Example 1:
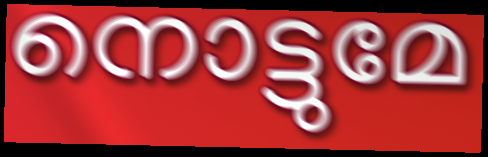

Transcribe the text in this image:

നൊട്ടുമേ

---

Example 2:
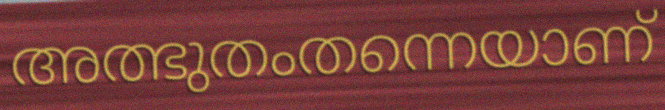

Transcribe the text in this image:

അത്ഭുതംതന്നെയാണ്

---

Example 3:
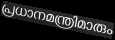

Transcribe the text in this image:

പ്രധാനമന്ത്രിമാരും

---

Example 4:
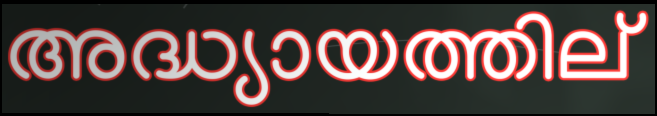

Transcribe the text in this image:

അദ്ധ്യായത്തില്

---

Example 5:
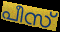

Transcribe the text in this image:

പീസ്